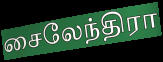
சைலேந்திரா